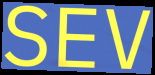
SEV